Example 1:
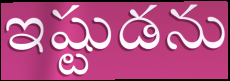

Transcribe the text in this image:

ఇష్టుడను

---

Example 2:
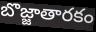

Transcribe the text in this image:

బొజ్జాతారకం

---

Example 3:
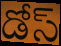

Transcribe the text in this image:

డోస్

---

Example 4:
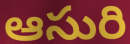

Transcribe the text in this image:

ఆసురి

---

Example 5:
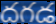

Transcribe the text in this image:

దగడ